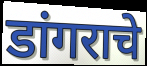
डांगराचे